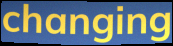
changing